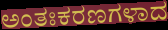
ಅಂತಃಕರಣಗಳಾದ